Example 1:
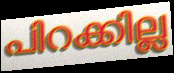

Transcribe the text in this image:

പിറക്കില്ല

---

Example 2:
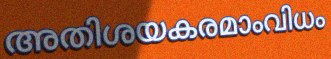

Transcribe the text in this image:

അതിശയകരമാംവിധം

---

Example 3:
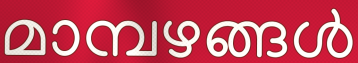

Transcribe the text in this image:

മാമ്പഴങ്ങൾ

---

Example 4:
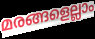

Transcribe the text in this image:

മരങ്ങളെല്ലാം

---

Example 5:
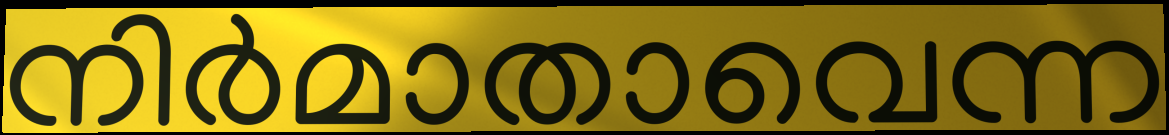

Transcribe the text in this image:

നിർമാതാവെന്ന